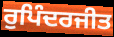
ਰੁਪਿੰਦਰਜੀਤ